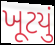
ખૂટયું